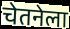
चेतनेला